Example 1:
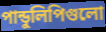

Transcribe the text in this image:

পান্ডুলিপিগুলো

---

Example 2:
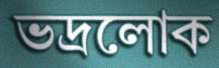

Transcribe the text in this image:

ভদ্রলোক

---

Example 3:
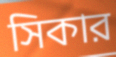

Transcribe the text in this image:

সিকার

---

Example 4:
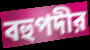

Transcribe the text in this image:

বহুপদীর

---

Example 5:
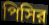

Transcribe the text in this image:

পিসির